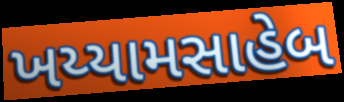
ખય્યામસાહેબ